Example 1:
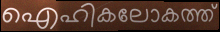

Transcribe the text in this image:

ഐഹികലോകത്ത്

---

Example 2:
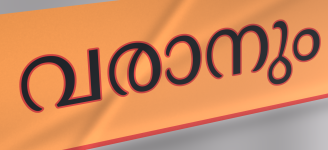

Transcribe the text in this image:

വരാനും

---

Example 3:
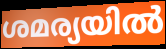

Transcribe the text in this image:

ശമര്യയിൽ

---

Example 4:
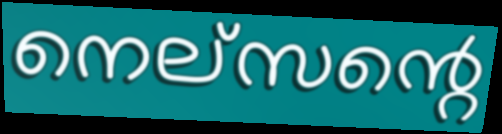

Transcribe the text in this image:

നെല്സന്റെ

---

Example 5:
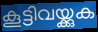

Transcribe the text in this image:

കൂട്ടിവയ്ക്കുക